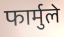
फार्मुले